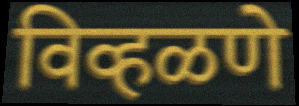
विव्हळणे